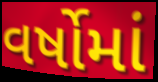
વર્ષોમાં